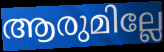
ആരുമില്ലേ